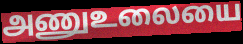
அணுஉலையை